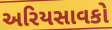
અરિયસાવકો